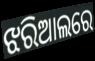
ଝରିଆଲରେ